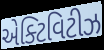
એક્ટિવિટીઝ